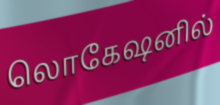
லொகேஷனில்